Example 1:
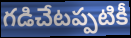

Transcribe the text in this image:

గడిచేటప్పటికీ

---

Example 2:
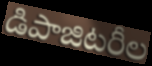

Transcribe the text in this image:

డిపాజిటరీల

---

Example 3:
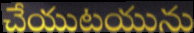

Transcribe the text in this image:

చేయుటయును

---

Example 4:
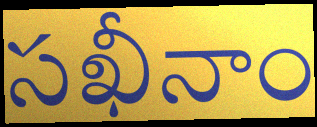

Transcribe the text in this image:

సఖీనాం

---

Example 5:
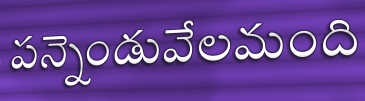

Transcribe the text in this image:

పన్నెండువేలమంది